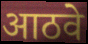
आठवे